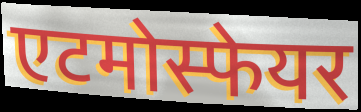
एटमोस्फेयर